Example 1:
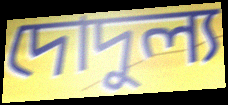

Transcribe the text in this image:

দোদুল্য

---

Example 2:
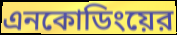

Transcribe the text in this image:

এনকোডিংয়ের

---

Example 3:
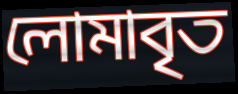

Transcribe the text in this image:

লোমাবৃত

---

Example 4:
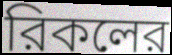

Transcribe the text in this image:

রিকলের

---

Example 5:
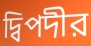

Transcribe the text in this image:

দ্বিপদীর